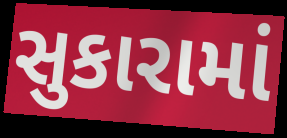
સુકારામાં